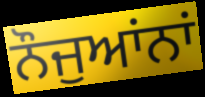
ਨੌਜੁਆਂਨਾਂ